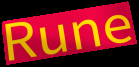
Rune